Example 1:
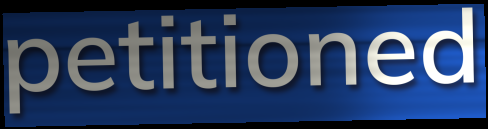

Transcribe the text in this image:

petitioned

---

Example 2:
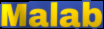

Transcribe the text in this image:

Malab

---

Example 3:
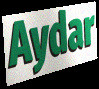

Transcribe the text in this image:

Aydar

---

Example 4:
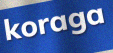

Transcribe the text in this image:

koraga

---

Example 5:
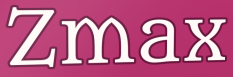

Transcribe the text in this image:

Zmax